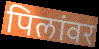
पिलांवर